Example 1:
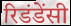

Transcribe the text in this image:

रिडंडेंसी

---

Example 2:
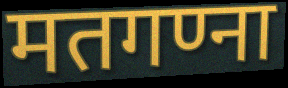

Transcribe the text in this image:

मतगण्ना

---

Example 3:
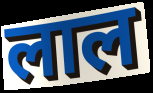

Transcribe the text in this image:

लाल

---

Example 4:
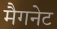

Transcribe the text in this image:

मैगनेट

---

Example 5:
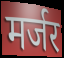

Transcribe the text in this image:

मर्जर